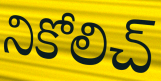
నికోలిచ్